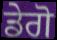
ਡੇਗੋ